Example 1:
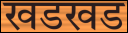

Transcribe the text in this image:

खडखड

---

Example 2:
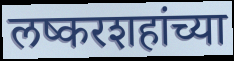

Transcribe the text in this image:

लष्करशहांच्या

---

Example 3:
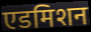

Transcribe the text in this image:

एडमिशन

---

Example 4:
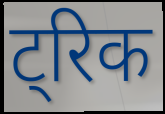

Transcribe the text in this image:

ट्रिक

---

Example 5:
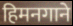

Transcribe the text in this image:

हिमनगाने